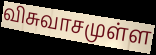
விசுவாசமுள்ள